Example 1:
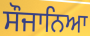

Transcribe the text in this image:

ਸੌਜਾਨਿਆ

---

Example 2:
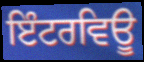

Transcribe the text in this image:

ਇੰਟਰਵਿਊ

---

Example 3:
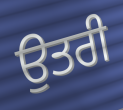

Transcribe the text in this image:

ਉਤਰੀ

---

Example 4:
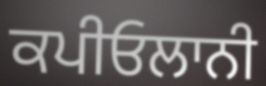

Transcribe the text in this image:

ਕਪੀਓਲਾਨੀ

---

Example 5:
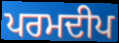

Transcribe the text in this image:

ਪਰਮਦੀਪ